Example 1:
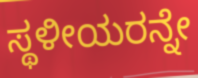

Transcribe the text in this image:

ಸ್ಥಳೀಯರನ್ನೇ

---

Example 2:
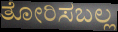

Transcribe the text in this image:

ತೋರಿಸಬಲ್ಲ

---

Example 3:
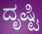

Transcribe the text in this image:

ದೃಷ್ಟಿ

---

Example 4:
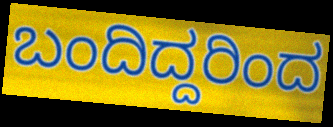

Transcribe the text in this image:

ಬಂದಿದ್ದರಿಂದ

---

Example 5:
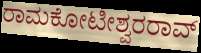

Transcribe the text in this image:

ರಾಮಕೋಟೀಶ್ವರರಾವ್